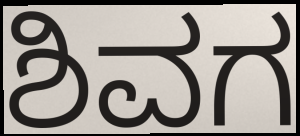
ಶಿವಗ